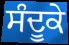
ਸੰਦੂਕੇ